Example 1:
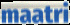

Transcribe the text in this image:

maatri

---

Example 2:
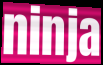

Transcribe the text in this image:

ninja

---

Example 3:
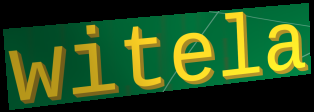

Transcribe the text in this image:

witela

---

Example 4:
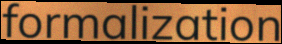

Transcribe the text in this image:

formalization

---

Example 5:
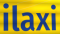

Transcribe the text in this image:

ilaxi